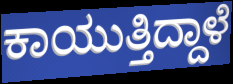
ಕಾಯುತ್ತಿದ್ದಾಳೆ